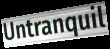
Untranquil